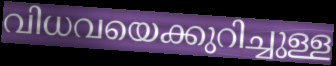
വിധവയെക്കുറിച്ചുള്ള